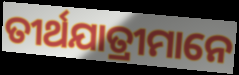
ତୀର୍ଥଯାତ୍ରୀମାନେ